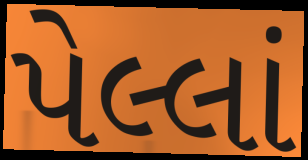
પેલ્લાં